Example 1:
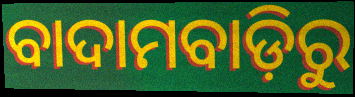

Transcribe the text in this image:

ବାଦାମବାଡ଼ିରୁ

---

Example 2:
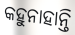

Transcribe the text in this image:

କହୁନାହାନ୍ତି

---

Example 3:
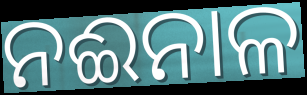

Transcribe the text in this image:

ନଈନାଳ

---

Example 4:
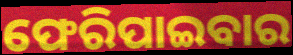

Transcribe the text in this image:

ଫେରିପାଇବାର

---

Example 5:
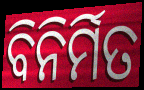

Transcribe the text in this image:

ବିନିର୍ମିତ